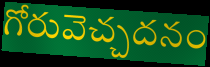
గోరువెచ్చదనం